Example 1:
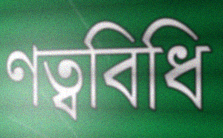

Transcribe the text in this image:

ণত্ববিধি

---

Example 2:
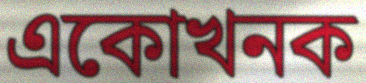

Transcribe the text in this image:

একোখনক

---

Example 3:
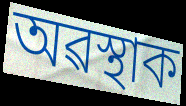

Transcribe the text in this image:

অৱস্থাক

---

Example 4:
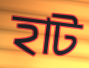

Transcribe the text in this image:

হাট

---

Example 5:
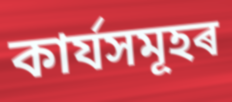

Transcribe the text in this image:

কাৰ্যসমূহৰ